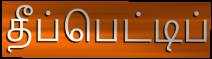
தீப்பெட்டிப்